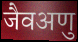
जैवअणु